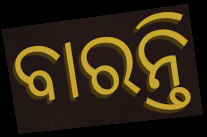
ବାରନ୍ତି